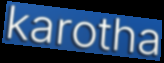
karotha